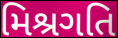
મિશ્રગતિ